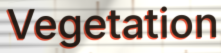
Vegetation